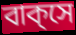
বাক্‌সে